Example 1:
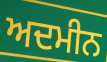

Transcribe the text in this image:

ਅਦਮੀਨ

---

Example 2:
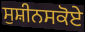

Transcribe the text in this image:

ਸੁਸ਼ੀਨਸਕੋਏ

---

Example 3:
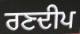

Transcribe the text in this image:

ਰਣਦੀਪ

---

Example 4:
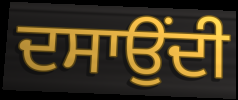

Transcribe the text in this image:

ਦਸਾਉਂਦੀ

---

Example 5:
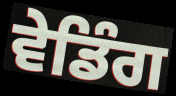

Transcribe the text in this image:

ਵੇਡਿੰਗ